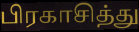
பிரகாசித்து